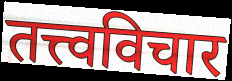
तत्त्वविचार